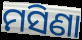
ମସିଣା